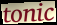
tonic